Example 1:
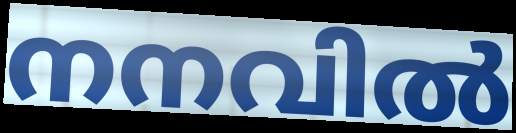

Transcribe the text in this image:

നനവിൽ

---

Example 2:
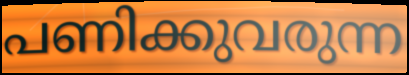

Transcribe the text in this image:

പണിക്കുവരുന്ന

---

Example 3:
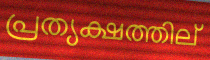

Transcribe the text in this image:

പ്രത്യക്ഷത്തില്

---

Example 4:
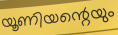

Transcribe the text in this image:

യൂണിയന്റെയും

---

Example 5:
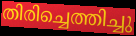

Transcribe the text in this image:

തിരിച്ചെത്തിച്ചു